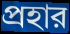
প্রহার